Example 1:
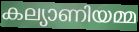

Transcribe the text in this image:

കല്യാണിയമ്മ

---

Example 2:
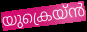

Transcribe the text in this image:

യുക്രെയ്ൻ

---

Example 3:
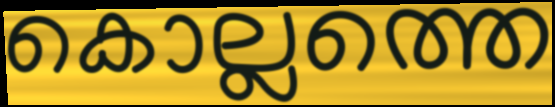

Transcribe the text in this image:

കൊല്ലത്തെ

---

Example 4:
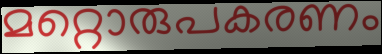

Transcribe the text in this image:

മറ്റൊരുപകരണം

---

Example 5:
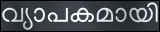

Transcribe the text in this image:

വ്യാപകമായി